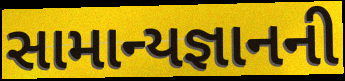
સામાન્યજ્ઞાનની